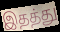
இதத்து